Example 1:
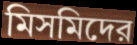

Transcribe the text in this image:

মিসমিদের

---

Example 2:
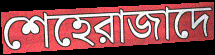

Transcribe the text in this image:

শেহেরাজাদে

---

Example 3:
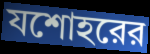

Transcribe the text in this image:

যশোহরের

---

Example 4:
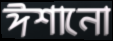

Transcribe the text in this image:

ঈশানো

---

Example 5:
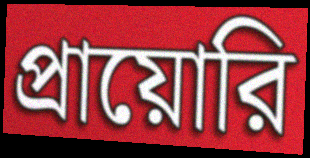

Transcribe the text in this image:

প্রায়োরি